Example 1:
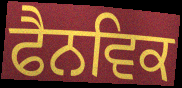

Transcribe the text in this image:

ਫੈਨਵਿਕ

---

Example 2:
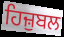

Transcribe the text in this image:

ਹਿਜ਼ੁਬਲ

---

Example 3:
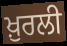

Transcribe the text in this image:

ਖ਼ੁਰਲੀ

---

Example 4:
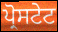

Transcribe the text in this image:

ਪ੍ਰੋਸਟੇਟ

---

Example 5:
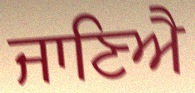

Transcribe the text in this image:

ਜਾਣਿਐ